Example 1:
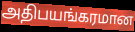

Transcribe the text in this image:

அதிபயங்கரமான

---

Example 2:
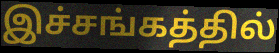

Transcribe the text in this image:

இச்சங்கத்தில்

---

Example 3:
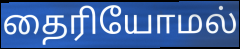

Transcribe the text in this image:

தைரியோமல்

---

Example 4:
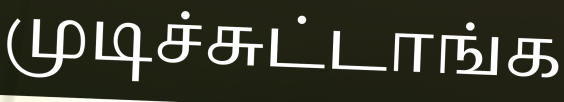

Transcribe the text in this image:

முடிச்சுட்டாங்க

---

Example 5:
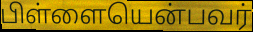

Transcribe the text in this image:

பிள்ளையென்பவர்